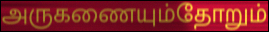
அருகணையும்தோறும்